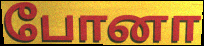
போனா